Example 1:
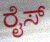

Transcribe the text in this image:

ರೈಸ್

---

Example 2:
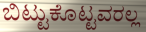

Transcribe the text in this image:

ಬಿಟ್ಟುಕೊಟ್ಟವರಲ್ಲ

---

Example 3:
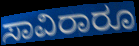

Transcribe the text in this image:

ಸಾವಿರಾರೂ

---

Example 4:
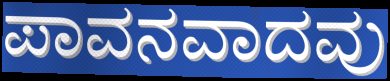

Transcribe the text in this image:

ಪಾವನವಾದವು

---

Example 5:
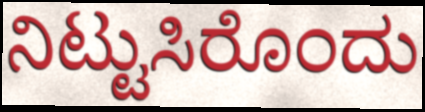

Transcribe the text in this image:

ನಿಟ್ಟುಸಿರೊಂದು